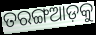
ତରଙ୍ଗଆଡ଼କୁ